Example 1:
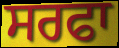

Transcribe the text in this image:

ਸਰਫਾ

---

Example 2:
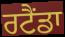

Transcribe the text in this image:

ਰਟੈਂਡਾ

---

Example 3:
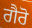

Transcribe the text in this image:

ਗੈਰੋ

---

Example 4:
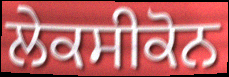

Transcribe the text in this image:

ਲੇਕਸੀਕੋਨ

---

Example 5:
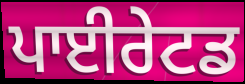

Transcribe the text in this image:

ਪਾਈਰੇਟਡ